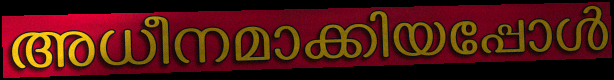
അധീനമാക്കിയപ്പോൾ